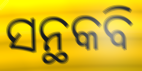
ସନ୍ଥକବି